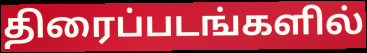
திரைப்படங்களில்